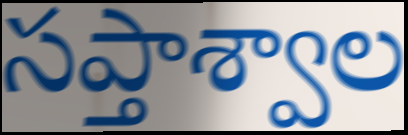
సప్తాశ్వాల